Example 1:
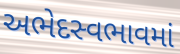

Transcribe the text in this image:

અભેદસ્વભાવમાં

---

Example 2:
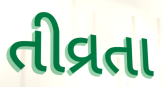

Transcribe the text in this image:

તીવ્રતા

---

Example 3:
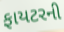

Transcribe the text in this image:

ફાયટરની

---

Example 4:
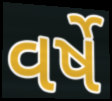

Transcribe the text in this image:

વર્ષે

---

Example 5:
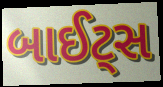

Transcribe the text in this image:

બાઈટ્સ